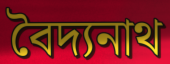
বৈদ্যনাথ